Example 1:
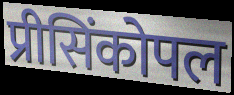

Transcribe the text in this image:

प्रीसिंकोपल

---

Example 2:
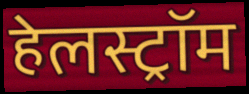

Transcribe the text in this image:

हेलस्ट्रॉम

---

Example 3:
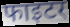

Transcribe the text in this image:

फाइटर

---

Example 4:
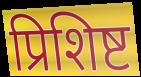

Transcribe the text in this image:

प्रिशिष्ट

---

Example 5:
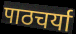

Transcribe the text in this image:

पाठचर्या